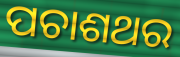
ପଚାଶଥର